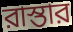
রাস্তার